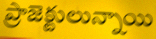
ప్రాజెక్టులున్నాయి